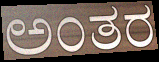
ಅಂತರ